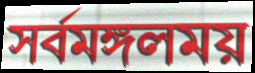
সর্বমঙ্গলময়